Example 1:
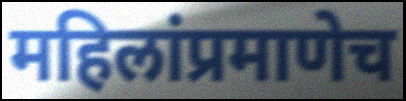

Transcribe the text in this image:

महिलांप्रमाणेच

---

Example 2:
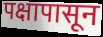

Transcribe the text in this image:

पक्षापासून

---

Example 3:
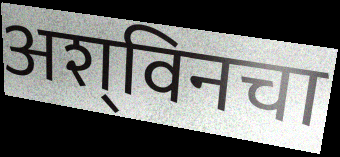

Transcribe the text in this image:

अश्विनचा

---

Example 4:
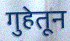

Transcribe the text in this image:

गुहेतून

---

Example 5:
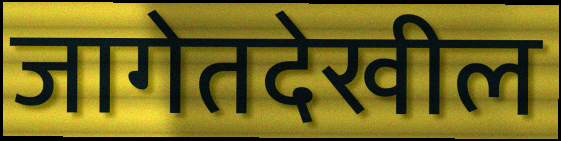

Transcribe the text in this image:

जागेतदेखील